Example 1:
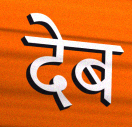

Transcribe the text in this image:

देब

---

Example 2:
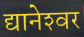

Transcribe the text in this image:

द्यानेश्वर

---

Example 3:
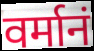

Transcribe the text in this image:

वर्मानं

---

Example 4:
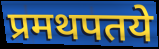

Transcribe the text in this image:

प्रमथपतये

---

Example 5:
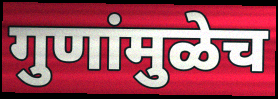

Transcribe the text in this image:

गुणांमुळेच